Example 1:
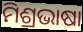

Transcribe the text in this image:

ମିଶ୍ରଭାଷା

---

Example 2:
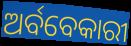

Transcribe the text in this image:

ଅର୍ବବେକାରୀ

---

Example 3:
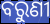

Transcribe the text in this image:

ବରୁଣୀ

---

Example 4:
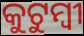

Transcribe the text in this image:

କୁଟୁମ୍ୱୀ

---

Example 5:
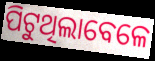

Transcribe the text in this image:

ପିଟୁଥିଲାବେଳେ